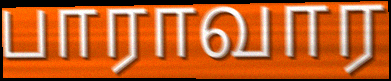
பாராவார